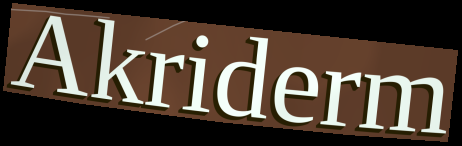
Akriderm